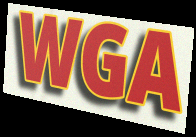
WGA